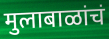
मुलाबाळांचं